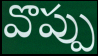
వొప్పు